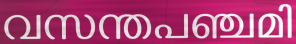
വസന്തപഞ്ചമി